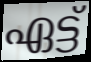
ഏട്ട്